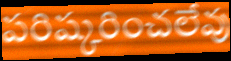
పరిష్కరించలేవు